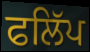
ਫਲਿੱਪ